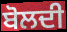
ਬੋਲਦੀ